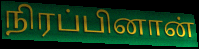
நிரப்பினான்